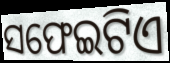
ସଫେଇଟିଏ